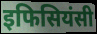
इफिसियंसी